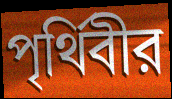
পৃর্থিবীর